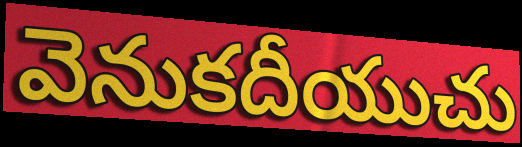
వెనుకదీయుచు